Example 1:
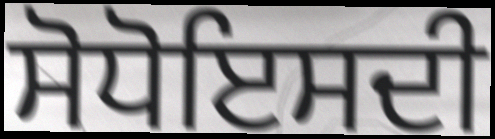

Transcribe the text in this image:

ਸੋਧੋਇਸਦੀ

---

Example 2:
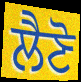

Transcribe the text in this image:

ਲੈਣੋ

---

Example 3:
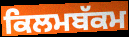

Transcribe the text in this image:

ਕਿਲਮਬੱਕਮ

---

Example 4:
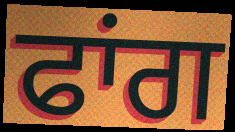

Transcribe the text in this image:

ਫਾਂਗ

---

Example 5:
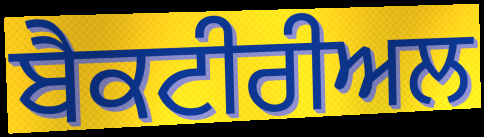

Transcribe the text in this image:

ਬੈਕਟੀਰੀਅਲ